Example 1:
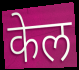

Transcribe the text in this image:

केल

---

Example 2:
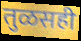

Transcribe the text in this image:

तुळसही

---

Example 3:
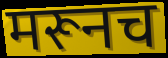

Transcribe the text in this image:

मरूनच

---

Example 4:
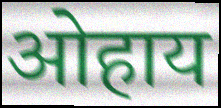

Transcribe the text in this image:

ओहाय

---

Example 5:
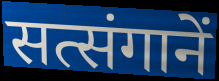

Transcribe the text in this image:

सत्संगानें